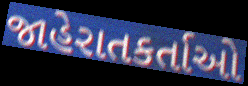
જાહેરાતકર્તાઓ